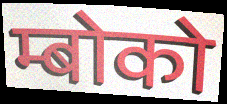
म्बोको